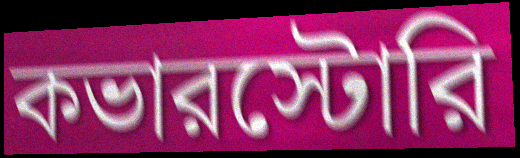
কভারস্টোরি